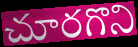
చూరగొని